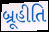
બ્રૂહીતિ